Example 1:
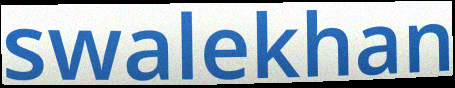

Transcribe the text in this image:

swalekhan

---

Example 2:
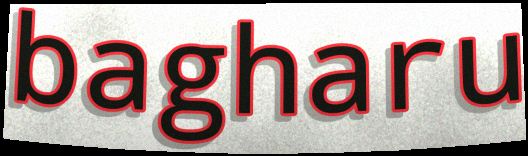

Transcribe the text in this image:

bagharu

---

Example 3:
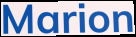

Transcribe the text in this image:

Marion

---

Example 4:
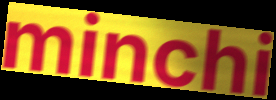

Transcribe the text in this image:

minchi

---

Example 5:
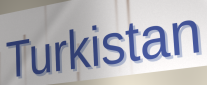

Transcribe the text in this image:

Turkistan